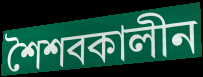
শৈশবকালীন